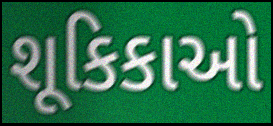
શૂકિકાઓ